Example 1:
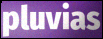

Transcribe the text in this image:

pluvias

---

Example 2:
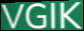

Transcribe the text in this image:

VGIK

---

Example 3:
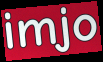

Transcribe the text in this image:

imjo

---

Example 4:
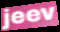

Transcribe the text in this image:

jeev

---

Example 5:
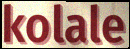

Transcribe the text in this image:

kolale